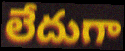
లేదుగా